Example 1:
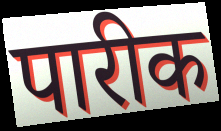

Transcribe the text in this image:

पारीक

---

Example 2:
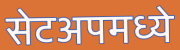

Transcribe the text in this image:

सेटअपमध्ये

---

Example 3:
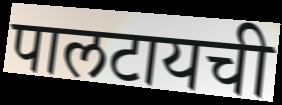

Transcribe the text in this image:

पालटायची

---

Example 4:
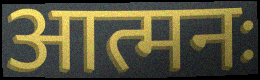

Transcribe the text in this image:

आत्मनः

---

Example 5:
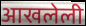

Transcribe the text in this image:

आखलेली